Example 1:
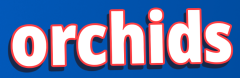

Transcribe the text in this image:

orchids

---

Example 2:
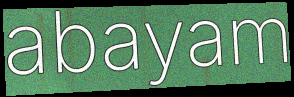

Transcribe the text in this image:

abayam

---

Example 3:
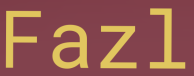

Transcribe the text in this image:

Fazl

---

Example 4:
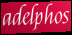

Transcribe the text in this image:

adelphos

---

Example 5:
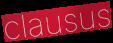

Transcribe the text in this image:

clausus